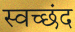
स्वच्छंद